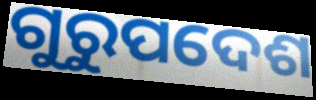
ଗୁରୁପଦେଶ